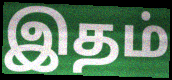
இதம்